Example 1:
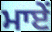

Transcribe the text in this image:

ਮਾਏਂ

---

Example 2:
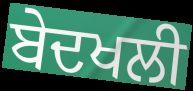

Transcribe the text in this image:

ਬੇਦਖਲੀ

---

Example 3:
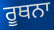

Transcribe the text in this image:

ਰੂਥਨਾ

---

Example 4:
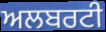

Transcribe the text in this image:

ਅਲਬਰਟੀ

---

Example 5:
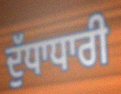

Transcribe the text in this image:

ਦੁੱਧਾਧਾਰੀ